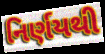
નિર્ણયથી